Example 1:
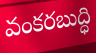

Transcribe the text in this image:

వంకరబుద్ధి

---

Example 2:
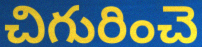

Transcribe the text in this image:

చిగురించె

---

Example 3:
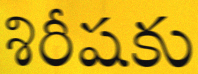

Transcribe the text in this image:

శిరీషకు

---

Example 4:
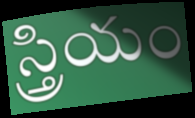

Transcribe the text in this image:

స్త్రియం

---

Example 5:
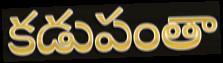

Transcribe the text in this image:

కడుపంతా